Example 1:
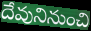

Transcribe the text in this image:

దేవునినుంచి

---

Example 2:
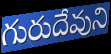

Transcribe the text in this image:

గురుదేవుని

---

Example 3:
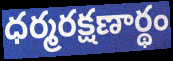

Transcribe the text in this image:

ధర్మరక్షణార్థం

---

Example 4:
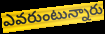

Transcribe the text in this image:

ఎవరుంటున్నారు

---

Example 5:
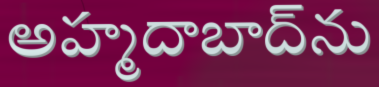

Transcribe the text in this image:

అహ్మదాబాద్‌ను